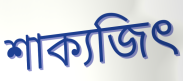
শাক্যজিৎ